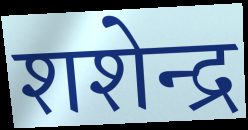
शशेन्द्र